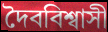
দৈববিশ্বাসী